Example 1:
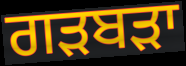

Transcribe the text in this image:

ਗੜਬੜਾ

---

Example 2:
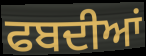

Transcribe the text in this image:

ਫਬਦੀਆਂ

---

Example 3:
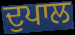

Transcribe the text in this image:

ਦੁਪਾਲ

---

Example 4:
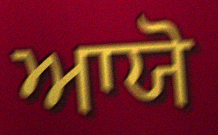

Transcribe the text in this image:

ਆਯੋ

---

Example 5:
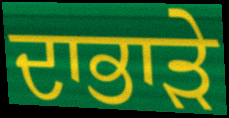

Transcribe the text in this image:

ਦਾਭਾੜੇ